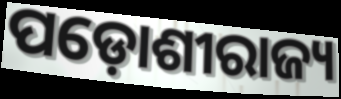
ପଡ଼ୋଶୀରାଜ୍ୟ